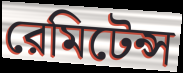
রেমিটেন্স